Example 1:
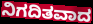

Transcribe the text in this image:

ನಿಗದಿತವಾದ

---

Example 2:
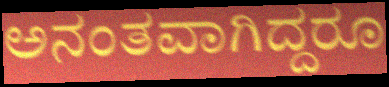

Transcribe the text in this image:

ಅನಂತವಾಗಿದ್ದರೂ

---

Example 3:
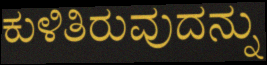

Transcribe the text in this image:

ಕುಳಿತಿರುವುದನ್ನು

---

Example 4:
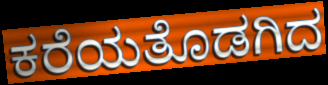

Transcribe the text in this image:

ಕರೆಯತೊಡಗಿದ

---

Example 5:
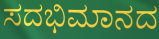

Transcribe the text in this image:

ಸದಭಿಮಾನದ